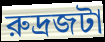
রুদ্রজটা